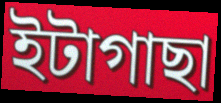
ইটাগাছা